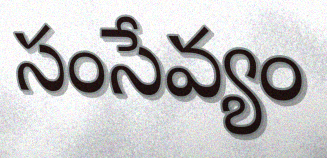
సంసేవ్యం